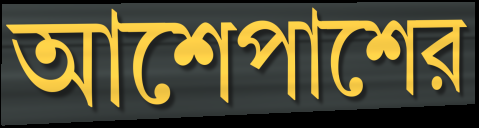
আশেপাশের